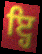
ਇ੍ਹ